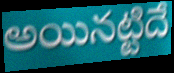
అయినట్టిదే